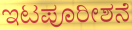
ಇಟಪೂರೀಶನೆ